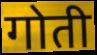
गोती